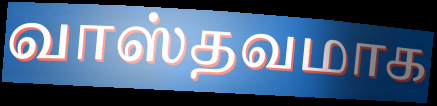
வாஸ்தவமாக